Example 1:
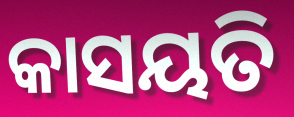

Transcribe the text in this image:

କାସୟତି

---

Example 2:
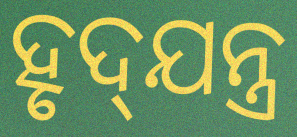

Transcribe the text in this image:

ହୃଦ୍‌ଯନ୍ତ୍ର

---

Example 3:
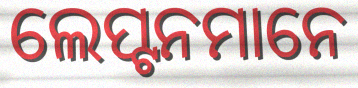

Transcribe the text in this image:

ଲେପ୍ଟନମାନେ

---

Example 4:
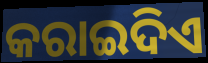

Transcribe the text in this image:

କରାଇଦିଏ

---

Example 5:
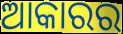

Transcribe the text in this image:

ଆକାରର